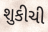
શુકીચી